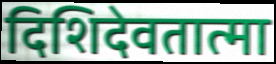
दिशिदेवतात्मा